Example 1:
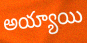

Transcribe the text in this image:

అయ్యాయి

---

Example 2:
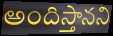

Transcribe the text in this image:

అందిస్తానని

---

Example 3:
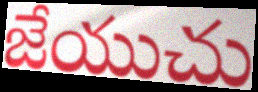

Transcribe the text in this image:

జేయుచు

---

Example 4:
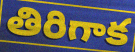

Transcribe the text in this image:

తిరిగాక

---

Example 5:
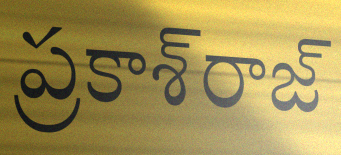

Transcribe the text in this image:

ప్రకాశ్‌రాజ్